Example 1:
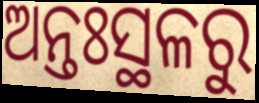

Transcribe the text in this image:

ଅନ୍ତଃସ୍ଥଳରୁ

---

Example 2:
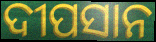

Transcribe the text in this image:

ଦୀପସାନ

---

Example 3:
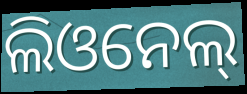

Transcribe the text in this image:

ଲିଓନେଲ୍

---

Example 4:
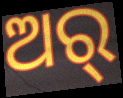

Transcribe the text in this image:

ଅର୍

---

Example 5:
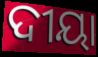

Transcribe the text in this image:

ଦୀୟା